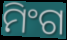
ମିଂଗ